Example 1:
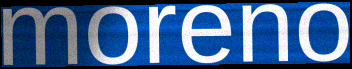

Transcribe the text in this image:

moreno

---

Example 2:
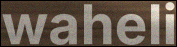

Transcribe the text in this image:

waheli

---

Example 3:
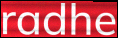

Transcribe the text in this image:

radhe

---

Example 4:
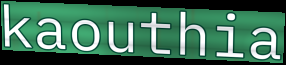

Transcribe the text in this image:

kaouthia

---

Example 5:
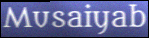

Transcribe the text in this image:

Musaiyab